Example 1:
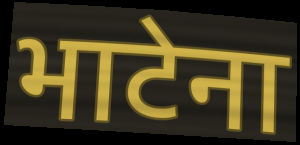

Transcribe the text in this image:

भाटेना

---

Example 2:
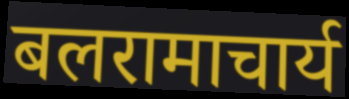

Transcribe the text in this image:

बलरामाचार्य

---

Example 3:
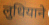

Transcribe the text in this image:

लुधियाने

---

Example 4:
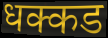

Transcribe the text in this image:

धक्कड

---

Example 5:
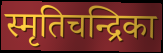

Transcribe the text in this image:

स्मृतिचन्द्रिका